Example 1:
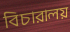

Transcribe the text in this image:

বিচারালয়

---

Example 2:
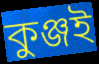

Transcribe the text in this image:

কুঞ্জই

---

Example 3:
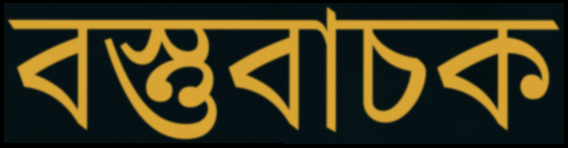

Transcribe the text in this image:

বস্তুবাচক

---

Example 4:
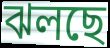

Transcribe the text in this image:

ঝলছে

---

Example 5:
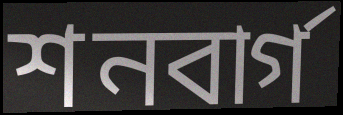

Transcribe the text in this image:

শনবার্গ